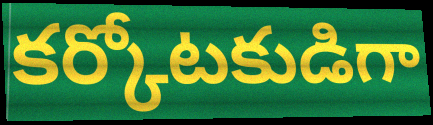
కర్కోటకుడిగా